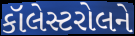
કૉલેસ્ટરોલને